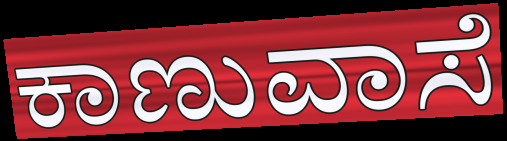
ಕಾಣುವಾಸೆ